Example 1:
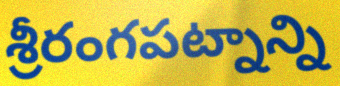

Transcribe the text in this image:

శ్రీరంగపట్నాన్ని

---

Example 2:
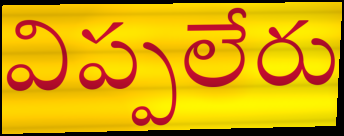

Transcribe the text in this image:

విప్పలేరు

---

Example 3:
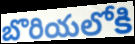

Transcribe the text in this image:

బొరియలోకి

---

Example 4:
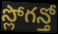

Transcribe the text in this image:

స్లోగన్తో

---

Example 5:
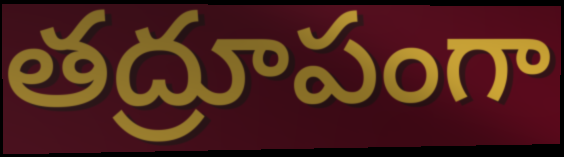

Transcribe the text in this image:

తద్రూపంగా